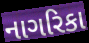
નાગરિકા